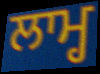
ਲਾਮ੍ਹ